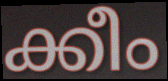
ക്കീം